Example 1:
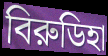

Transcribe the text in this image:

বিরুডিহা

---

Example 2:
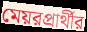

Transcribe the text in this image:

মেয়রপ্রার্থীর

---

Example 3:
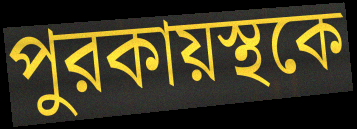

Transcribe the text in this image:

পুরকায়স্থকে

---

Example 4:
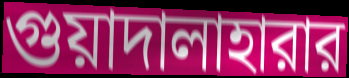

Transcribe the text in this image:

গুয়াদালাহারার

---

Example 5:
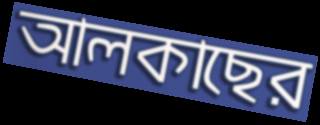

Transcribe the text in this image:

আলকাছের